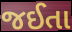
જઈતા